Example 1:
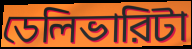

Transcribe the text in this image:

ডেলিভারিটা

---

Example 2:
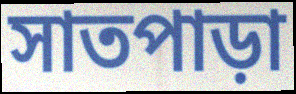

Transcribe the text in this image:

সাতপাড়া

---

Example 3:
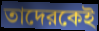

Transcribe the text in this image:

তাদেরকেই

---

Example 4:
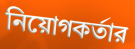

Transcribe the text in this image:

নিয়োগকর্তার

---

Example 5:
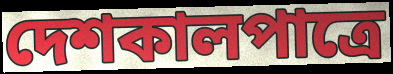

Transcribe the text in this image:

দেশকালপাত্রে